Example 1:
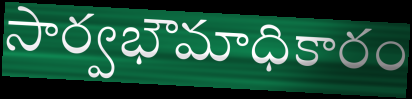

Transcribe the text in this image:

సార్వభౌమాధికారం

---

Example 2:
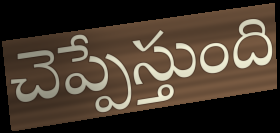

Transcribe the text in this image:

చెప్పేస్తుంది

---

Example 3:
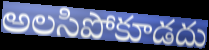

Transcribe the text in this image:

అలసిపోకూడదు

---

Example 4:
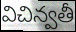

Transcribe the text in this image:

విచిన్వతీ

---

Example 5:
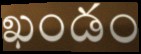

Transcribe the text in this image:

ఖండం